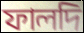
ফালদি